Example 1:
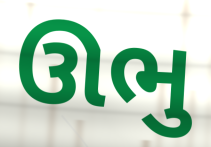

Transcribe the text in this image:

ઊભુ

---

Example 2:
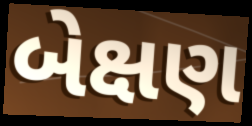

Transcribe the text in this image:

બેક્ષણ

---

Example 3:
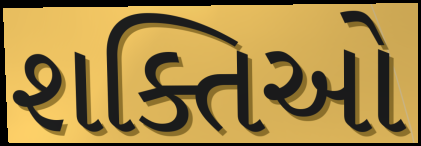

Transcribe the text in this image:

શક્તિઓ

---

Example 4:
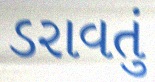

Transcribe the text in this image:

ડરાવતું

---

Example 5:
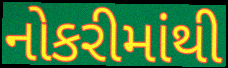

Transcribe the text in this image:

નોકરીમાંથી